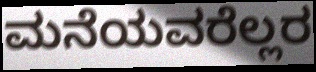
ಮನೆಯವರೆಲ್ಲರ